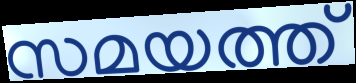
സമയത്ത്